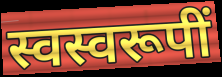
स्वस्वरूपीं